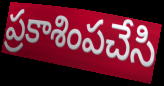
ప్రకాశింపచేసి